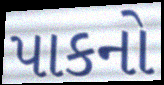
પાકનો